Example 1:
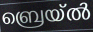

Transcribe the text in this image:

ബ്രെയ്ൽ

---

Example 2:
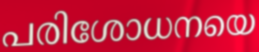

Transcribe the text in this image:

പരിശോധനയെ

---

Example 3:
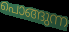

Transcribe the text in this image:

പൊങ്ങുന്ന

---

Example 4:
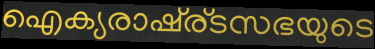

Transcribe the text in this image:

ഐക്യരാഷ്ര്ടസഭയുടെ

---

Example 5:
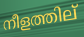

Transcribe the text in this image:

നീളത്തില്